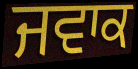
ਜਵਾਕ